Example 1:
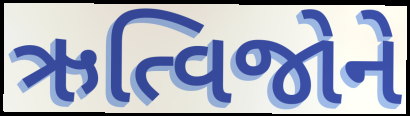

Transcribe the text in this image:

ઋત્વિજોને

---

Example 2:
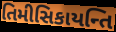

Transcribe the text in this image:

તિમીસિકાયન્તિ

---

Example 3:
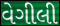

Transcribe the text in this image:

વેગીલી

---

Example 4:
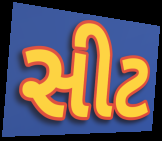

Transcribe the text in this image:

સીટ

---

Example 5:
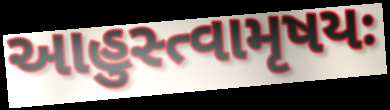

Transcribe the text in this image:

આહુસ્ત્વામૃષયઃ